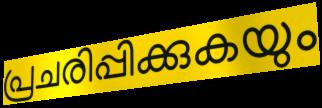
പ്രചരിപ്പിക്കുകയും